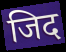
जिद